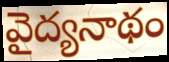
వైద్యనాథం